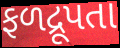
ફળદ્રૂપતા